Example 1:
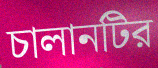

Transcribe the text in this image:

চালানটির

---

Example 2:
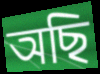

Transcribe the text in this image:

অছি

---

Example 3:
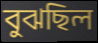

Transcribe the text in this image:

বুঝছিল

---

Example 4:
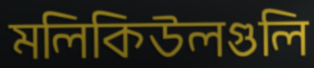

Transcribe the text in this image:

মলিকিউলগুলি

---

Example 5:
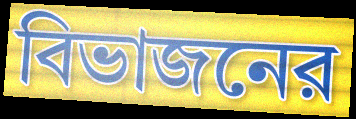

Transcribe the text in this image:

বিভাজনের